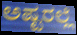
ಅಷ್ಟರಲ್ಲೆ